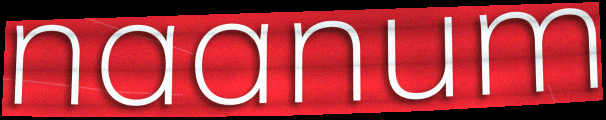
naanum